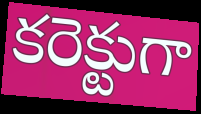
కరెక్టుగా